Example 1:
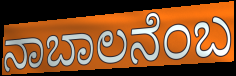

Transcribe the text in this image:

ನಾಬಾಲನೆಂಬ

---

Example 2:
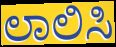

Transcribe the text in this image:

ಲಾಲಿಸಿ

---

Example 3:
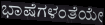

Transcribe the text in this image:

ಭಾಷೆಗಳಂತೆಯೇ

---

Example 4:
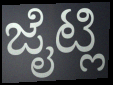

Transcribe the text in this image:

ಜೈಟ್ಲಿ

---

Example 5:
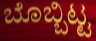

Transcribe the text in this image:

ಬೊಬ್ಬಿಟ್ಟ